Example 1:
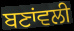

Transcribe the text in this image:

ਬਣਾਂਵਲੀ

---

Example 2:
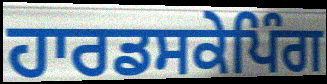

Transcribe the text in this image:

ਹਾਰਡਸਕੇਪਿੰਗ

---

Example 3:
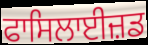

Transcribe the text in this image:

ਫਾਸਿਲਾਈਜ਼ਡ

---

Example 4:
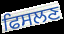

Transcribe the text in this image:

ਫਿਸਲਣ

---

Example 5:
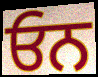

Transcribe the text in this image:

ਓਨ